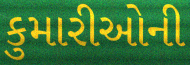
કુમારીઓની